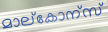
മാല്കോന്സ്